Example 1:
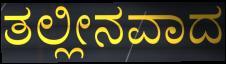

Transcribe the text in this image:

ತಲ್ಲೀನವಾದ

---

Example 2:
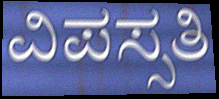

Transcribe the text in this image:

ವಿಪಸ್ಸತಿ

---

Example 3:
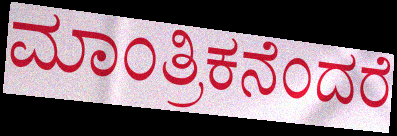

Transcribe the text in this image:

ಮಾಂತ್ರಿಕನೆಂದರೆ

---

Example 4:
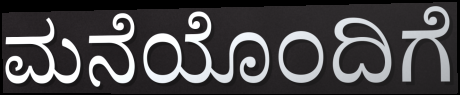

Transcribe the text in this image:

ಮನೆಯೊಂದಿಗೆ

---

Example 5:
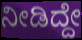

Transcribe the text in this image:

ನೀಡಿದ್ದೇ